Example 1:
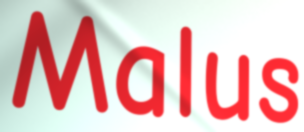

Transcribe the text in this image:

Malus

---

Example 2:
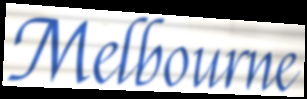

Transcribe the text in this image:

Melbourne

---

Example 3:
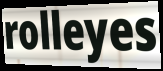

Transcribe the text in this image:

rolleyes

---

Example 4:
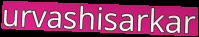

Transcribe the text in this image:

urvashisarkar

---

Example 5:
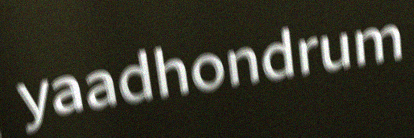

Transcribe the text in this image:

yaadhondrum